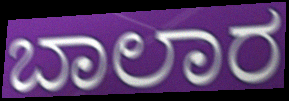
ಬಾಲಾರ